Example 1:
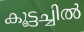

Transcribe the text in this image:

കൂട്ടച്ചിൽ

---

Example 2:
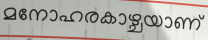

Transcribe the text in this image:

മനോഹരകാഴ്ചയാണ്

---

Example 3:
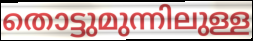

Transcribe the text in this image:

തൊട്ടുമുന്നിലുള്ള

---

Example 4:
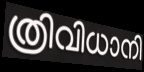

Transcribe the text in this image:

ത്രിവിധാനി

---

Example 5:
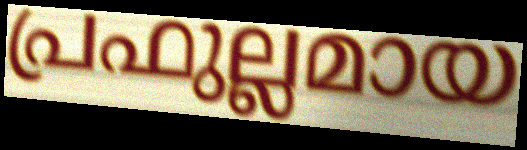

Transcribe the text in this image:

പ്രഫുല്ലമായ